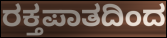
ರಕ್ತಪಾತದಿಂದ